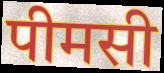
पीमसी